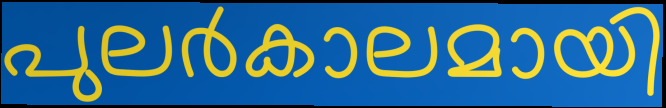
പുലർകാലമായി